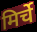
मिर्चे